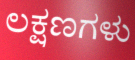
ಲಕ್ಷಣಗಳು